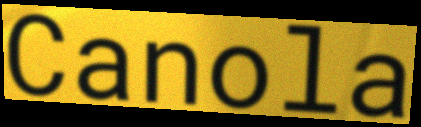
Canola